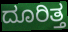
ದೂರಿತ್ತ